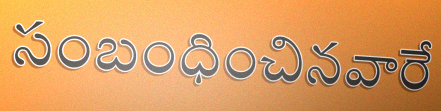
సంబంధించినవారే